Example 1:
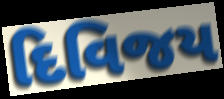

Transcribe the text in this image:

દિવિજય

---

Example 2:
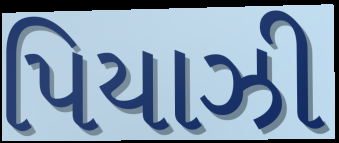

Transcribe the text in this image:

પિયાઝી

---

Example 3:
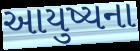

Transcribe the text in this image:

આયુષ્યના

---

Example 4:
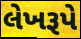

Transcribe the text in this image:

લેખરૂપે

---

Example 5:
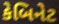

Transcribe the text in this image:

કેબિનેટ